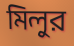
মিলুর